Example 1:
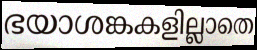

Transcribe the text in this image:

ഭയാശങ്കകളില്ലാതെ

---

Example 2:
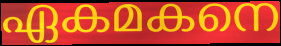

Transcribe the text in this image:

ഏകമകനെ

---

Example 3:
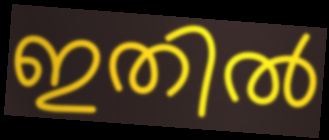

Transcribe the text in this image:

ഇതിൽ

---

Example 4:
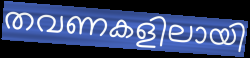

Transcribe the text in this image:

തവണകളിലായി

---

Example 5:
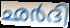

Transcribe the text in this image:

ഛർദി